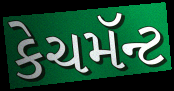
કેચમૅન્ટ